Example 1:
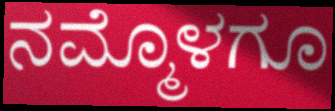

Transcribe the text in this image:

ನಮ್ಮೊಳಗೂ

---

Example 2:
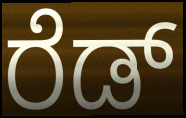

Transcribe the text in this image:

ರೆಡ್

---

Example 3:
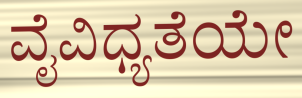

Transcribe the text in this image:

ವೈವಿಧ್ಯತೆಯೇ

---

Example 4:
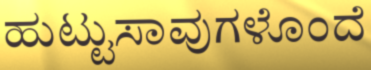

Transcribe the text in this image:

ಹುಟ್ಟುಸಾವುಗಳೊಂದೆ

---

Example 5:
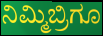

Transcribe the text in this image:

ನಿಮ್ಮಿಬ್ರಿಗೂ